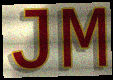
JM